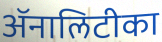
ॲनालिटीका